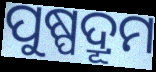
ପୁଷ୍ପଦ୍ରୂମ